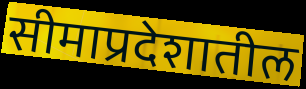
सीमाप्रदेशातील